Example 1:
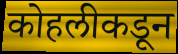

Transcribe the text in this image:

कोहलीकडून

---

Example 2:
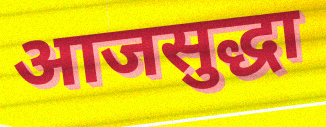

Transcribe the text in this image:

आजसुद्धा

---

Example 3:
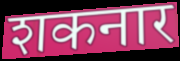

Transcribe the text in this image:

शकनार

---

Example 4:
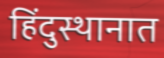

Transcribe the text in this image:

हिंदुस्थानात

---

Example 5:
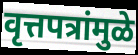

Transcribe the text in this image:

वृत्तपत्रांमुळे